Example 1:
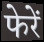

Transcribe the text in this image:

फेरें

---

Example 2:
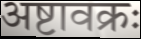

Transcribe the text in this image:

अष्टावक्रः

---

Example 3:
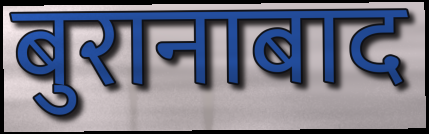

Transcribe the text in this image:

बुरानाबाद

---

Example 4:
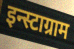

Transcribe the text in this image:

इन्स्टाग्राम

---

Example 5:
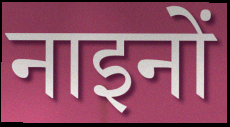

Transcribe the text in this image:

नाइनों